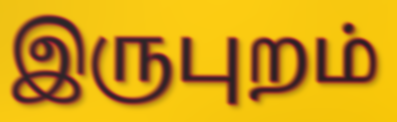
இருபுறம்